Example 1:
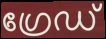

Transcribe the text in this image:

ഗ്രേഡ്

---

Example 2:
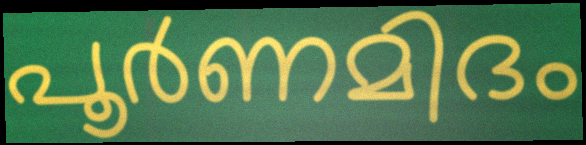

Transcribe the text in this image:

പൂർണമിദം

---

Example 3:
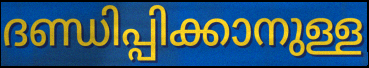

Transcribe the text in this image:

ദണ്ഡിപ്പിക്കാനുള്ള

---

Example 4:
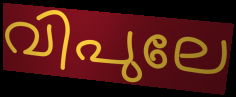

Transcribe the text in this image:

വിപുലേ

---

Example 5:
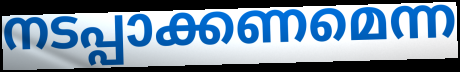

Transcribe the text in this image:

നടപ്പാക്കണമെന്ന